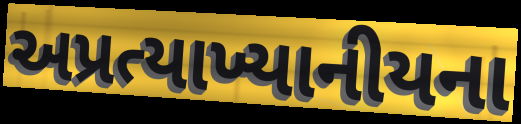
અપ્રત્યાખ્યાનીયના